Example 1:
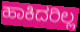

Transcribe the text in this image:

ಹಾಕಿದರಿಲ್ಲ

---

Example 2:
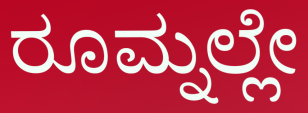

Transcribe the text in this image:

ರೂಮ್ನಲ್ಲೇ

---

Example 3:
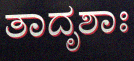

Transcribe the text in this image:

ತಾದೃಶಾಃ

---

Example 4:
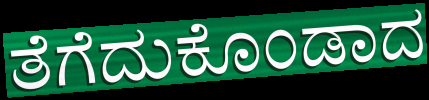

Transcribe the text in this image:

ತೆಗೆದುಕೊಂಡಾದ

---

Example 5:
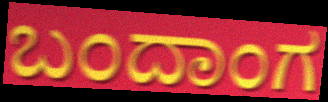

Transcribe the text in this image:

ಬಂದಾಂಗ